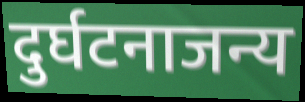
दुर्घटनाजन्य